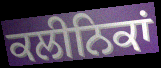
ਕਲੀਨਿਕਾਂ